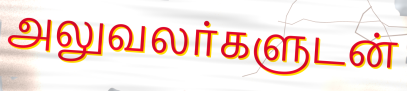
அலுவலர்களுடன்